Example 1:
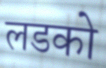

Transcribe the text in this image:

लडको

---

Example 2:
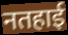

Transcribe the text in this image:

नतहाई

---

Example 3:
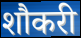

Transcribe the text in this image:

शौकरी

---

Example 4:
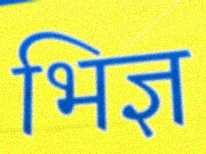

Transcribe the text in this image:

भिज्ञ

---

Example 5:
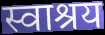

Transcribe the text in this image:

स्वाश्रय